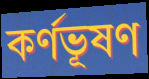
কর্ণভূষণ